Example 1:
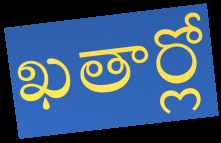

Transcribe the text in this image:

ఖతార్లో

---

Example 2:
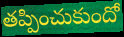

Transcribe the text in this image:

తప్పించుకుందో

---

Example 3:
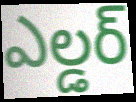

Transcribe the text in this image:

ఎల్డర్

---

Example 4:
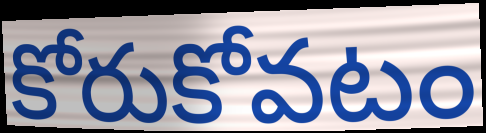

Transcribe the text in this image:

కోరుకోవటం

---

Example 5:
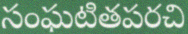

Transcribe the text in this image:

సంఘటితపరచి